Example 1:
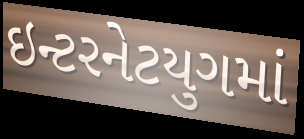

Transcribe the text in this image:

ઇન્ટરનેટયુગમાં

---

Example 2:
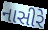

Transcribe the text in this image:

નાસીરે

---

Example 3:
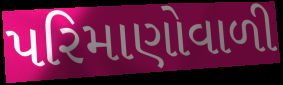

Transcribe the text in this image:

પરિમાણોવાળી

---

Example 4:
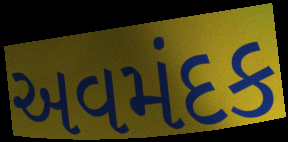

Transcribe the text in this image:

અવમંદક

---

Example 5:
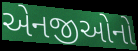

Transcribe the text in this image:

એનજીઓનો